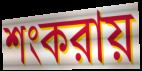
শংকরায়